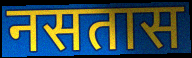
नसतास